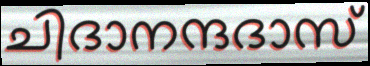
ചിദാനന്ദദാസ്